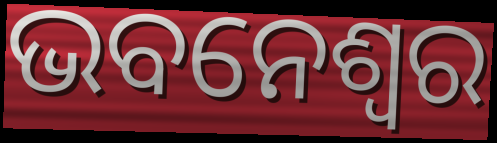
ଭବନେଶ୍ୱର